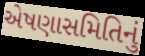
એષણાસમિતિનું